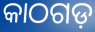
କାଠଗଡ଼